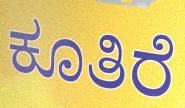
ಕೂತಿರೆ